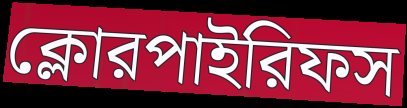
ক্লোরপাইরিফস